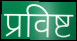
प्रविष्ट